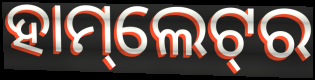
ହାମ୍‌ଲେଟ୍‌ର